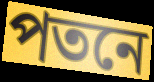
পতনে